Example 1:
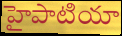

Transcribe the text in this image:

హైపాటియా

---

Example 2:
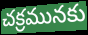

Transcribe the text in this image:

చక్రమునకు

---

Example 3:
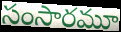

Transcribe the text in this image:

సంసారమూ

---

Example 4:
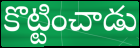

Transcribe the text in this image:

కొట్టించాడు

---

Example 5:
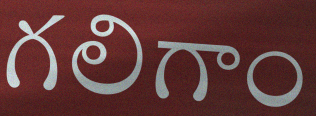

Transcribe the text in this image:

గలిగాం